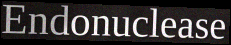
Endonuclease